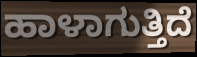
ಹಾಳಾಗುತ್ತಿದೆ